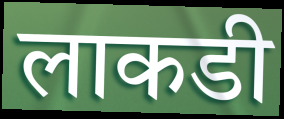
लाकडी